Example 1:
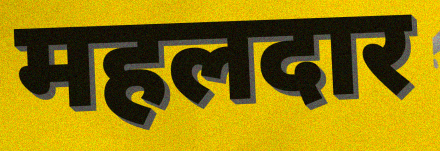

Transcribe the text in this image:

महलदार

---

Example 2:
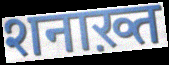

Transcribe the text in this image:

शनाख़्त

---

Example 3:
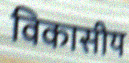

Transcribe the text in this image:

विकासीय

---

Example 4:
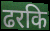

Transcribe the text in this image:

ढरकि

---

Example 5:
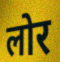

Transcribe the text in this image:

लोर